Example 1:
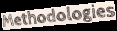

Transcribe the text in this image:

Methodologies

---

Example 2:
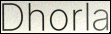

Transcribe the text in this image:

Dhorla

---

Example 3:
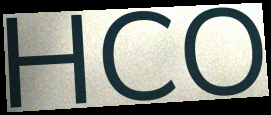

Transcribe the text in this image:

HCO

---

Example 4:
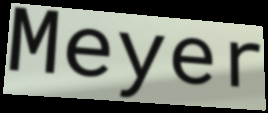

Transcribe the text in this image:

Meyer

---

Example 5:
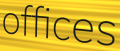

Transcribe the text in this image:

offices